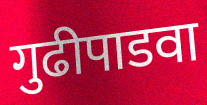
गुढीपाडवा